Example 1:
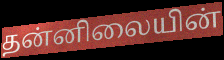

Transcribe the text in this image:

தன்னிலையின்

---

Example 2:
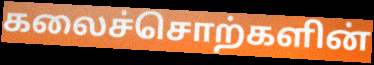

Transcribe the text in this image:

கலைச்சொற்களின்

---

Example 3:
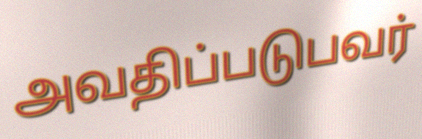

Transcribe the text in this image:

அவதிப்படுபவர்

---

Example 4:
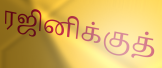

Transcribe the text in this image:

ரஜினிக்குத்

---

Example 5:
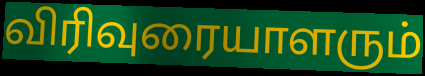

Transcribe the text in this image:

விரிவுரையாளரும்